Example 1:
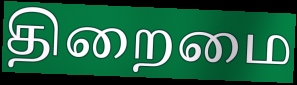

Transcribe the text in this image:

திறைமை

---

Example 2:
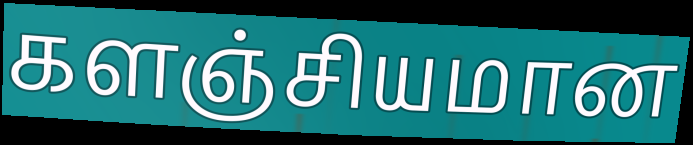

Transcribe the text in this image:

களஞ்சியமான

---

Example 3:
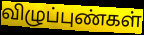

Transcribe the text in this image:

விழுப்புண்கள்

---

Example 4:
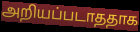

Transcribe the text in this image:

அறியப்படாததாக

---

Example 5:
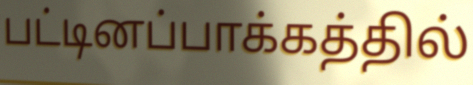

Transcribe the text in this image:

பட்டினப்பாக்கத்தில்